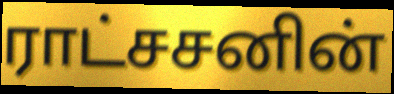
ராட்சசனின்